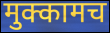
मुक्कामच